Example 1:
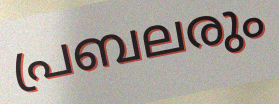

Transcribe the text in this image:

പ്രബലരും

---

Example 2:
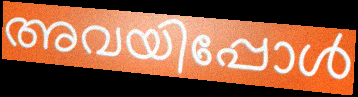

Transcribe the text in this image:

അവയിപ്പോൾ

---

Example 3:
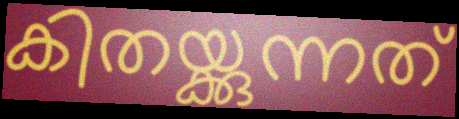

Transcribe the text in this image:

കിതയ്ക്കുന്നത്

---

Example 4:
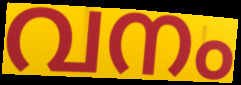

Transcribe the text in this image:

വനം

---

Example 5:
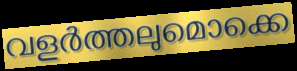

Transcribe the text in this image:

വളർത്തലുമൊക്കെ